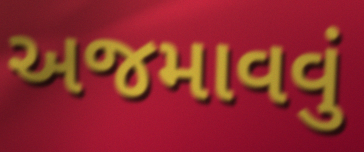
અજમાવવું